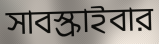
সাবস্ক্রাইবার